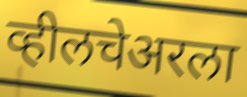
व्हीलचेअरला